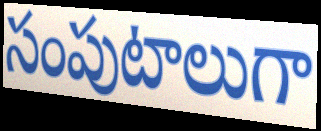
సంపుటాలుగా